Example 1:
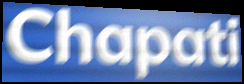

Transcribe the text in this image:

Chapati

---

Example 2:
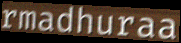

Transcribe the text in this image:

rmadhuraa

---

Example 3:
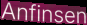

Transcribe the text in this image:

Anfinsen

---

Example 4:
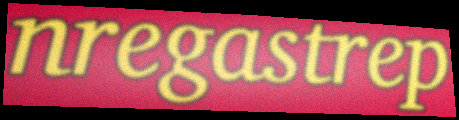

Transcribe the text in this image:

nregastrep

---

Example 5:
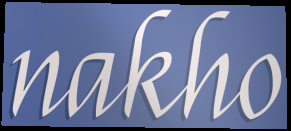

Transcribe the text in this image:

nakho